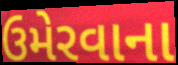
ઉમેરવાના